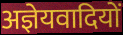
अज्ञेयवादियों